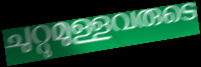
ചുറ്റുമുള്ളവരുടെ